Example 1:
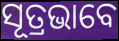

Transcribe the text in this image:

ସୂତ୍ରଭାବେ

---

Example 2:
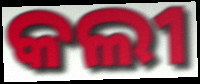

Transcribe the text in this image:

କଲୀ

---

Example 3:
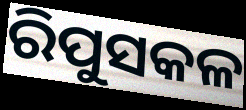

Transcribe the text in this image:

ରିପୁସକଳ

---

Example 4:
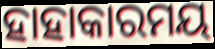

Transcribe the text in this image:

ହାହାକାରମୟ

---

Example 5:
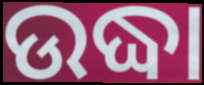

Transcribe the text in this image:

ଉଦ୍ଧା